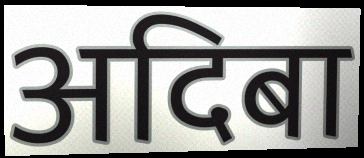
अदिबा